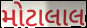
મોટાલાલ